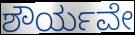
ಶೌರ್ಯವೇ